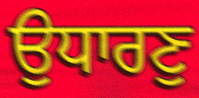
ਉਧਾਰਣੁ